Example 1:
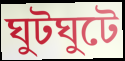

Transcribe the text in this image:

ঘুটঘুটে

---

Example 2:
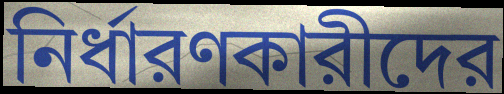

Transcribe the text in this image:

নির্ধারণকারীদের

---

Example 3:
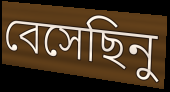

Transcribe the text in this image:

বেসেছিনু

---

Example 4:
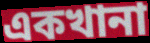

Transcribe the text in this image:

একখানা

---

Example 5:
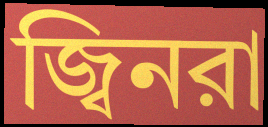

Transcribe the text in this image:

জ্বিনরা